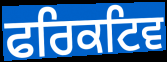
ਫਰਿਕਟਿਵ